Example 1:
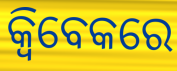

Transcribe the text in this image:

କ୍ୱିବେକରେ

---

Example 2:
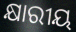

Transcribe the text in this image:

କ୍ଷାରୀୟ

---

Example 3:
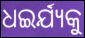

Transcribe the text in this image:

ଧଇର୍ଯ୍ୟକୁ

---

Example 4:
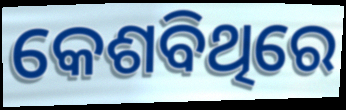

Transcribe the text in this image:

କେଶବିଥିରେ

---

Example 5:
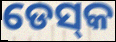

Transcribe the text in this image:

ଡେସ୍‌କ